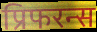
प्रिफरन्स